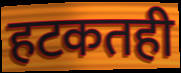
हटकतही